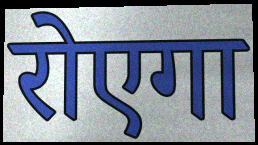
रोएगा